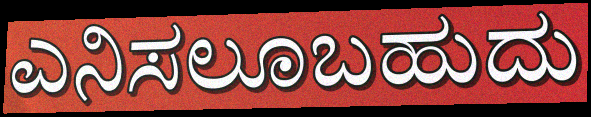
ಎನಿಸಲೂಬಹುದು